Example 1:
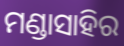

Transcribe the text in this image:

ମଣ୍ଡାସାହିର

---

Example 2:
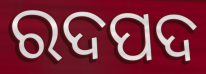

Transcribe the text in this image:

ରଦପଦ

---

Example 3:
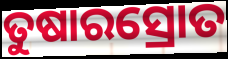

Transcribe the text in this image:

ତୁଷାରସ୍ରୋତ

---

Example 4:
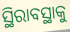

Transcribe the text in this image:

ସ୍ଥିରାବସ୍ଥାକୁ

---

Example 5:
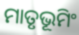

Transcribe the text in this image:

ମାତୃଭୂମିଂ